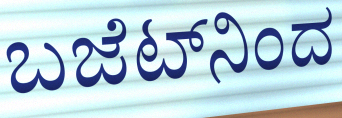
ಬಜೆಟ್‌ನಿಂದ